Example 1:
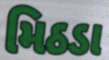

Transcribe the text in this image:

મિઠડા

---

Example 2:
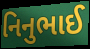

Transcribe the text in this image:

નિનુભાઈ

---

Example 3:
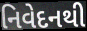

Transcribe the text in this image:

નિવેદનથી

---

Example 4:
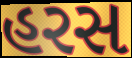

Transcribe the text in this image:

હરસ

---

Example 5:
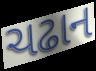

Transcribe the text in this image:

ચઢાન